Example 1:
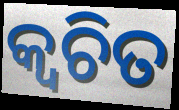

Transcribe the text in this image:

କ୍ୱଚିତ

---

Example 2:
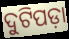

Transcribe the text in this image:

ଦୁଟିପଡ଼ା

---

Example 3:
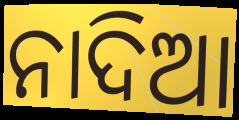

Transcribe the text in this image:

ନାଦିଆ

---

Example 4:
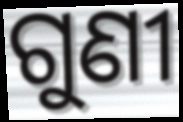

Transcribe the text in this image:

ଗୁଣୀ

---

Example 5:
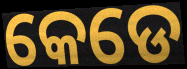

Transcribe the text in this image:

କେଡେ